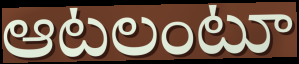
ఆటలంటూ